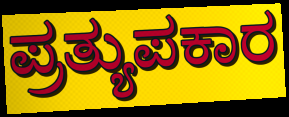
ಪ್ರತ್ಯುಪಕಾರ